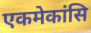
एकमेकांसि